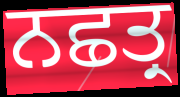
ਨਛਤ੍ਰ